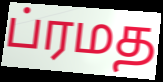
ப்ரமத